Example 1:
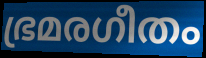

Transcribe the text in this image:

ഭ്രമരഗീതം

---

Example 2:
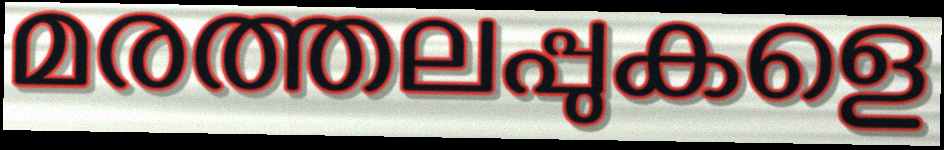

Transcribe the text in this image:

മരത്തലപ്പുകളെ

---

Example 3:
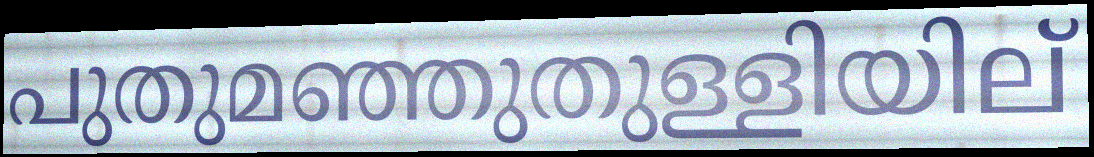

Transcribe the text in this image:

പുതുമഞ്ഞുതുള്ളിയില്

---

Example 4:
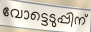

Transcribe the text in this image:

വോട്ടെടുപ്പിന്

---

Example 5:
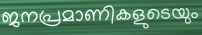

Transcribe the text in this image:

ജനപ്രമാണികളുടെയും